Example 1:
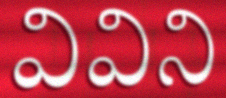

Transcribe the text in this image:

వివిని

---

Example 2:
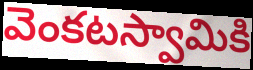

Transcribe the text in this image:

వెంకటస్వామికి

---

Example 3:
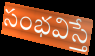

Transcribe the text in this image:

సంభవిస్తే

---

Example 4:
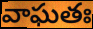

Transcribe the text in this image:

వాఘతః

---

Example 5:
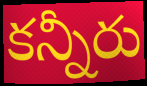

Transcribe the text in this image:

కన్నీరు